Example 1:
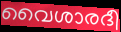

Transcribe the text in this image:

വൈശാരദീ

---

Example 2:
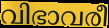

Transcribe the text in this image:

വിഭാവരീ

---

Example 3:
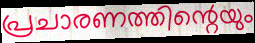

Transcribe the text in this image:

പ്രചാരണത്തിന്റെയും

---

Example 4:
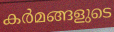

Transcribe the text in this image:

കർമങ്ങളുടെ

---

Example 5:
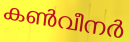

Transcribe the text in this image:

കൺവീനർ